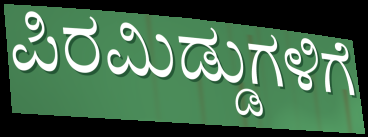
ಪಿರಮಿಡ್ಡುಗಳಿಗೆ